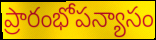
ప్రారంభోపన్యాసం